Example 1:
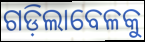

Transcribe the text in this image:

ଗଡ଼ିଲାବେଳକୁ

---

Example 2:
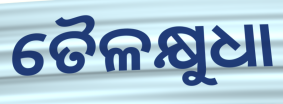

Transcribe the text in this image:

ତୈଳକ୍ଷୁଧା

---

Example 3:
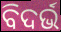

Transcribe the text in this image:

ବିଦର୍ଭ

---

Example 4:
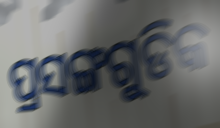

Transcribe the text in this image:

ପ୍ରସଙ୍ଗଗୁଡିକ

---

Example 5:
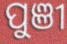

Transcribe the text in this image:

ପୁଞୀ